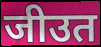
जीउत